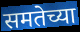
समतेच्या